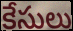
కేసులు